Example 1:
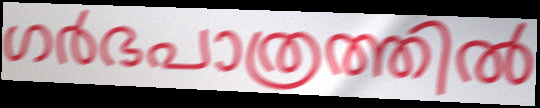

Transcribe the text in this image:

ഗർഭപാത്രത്തിൽ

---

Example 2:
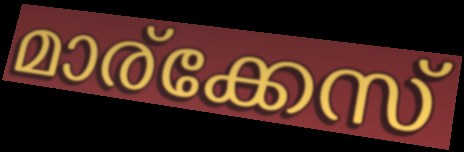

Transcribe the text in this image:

മാര്ക്കേസ്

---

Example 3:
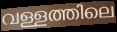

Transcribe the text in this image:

വള്ളത്തിലെ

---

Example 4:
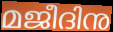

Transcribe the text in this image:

മജീദിനു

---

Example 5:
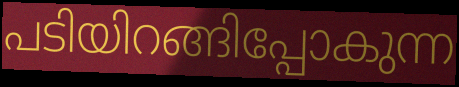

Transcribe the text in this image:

പടിയിറങ്ങിപ്പോകുന്ന